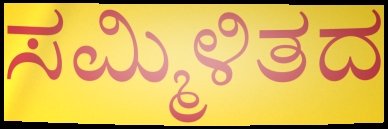
ಸಮ್ಮಿಳಿತದ